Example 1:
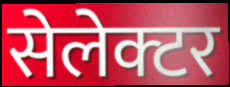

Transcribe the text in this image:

सेलेक्‍टर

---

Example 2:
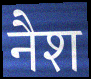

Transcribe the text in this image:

नैश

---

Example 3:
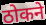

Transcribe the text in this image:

ठोकने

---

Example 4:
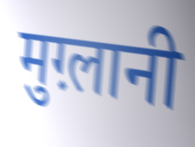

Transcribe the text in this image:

मुग़्लानी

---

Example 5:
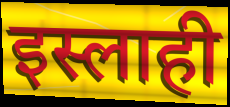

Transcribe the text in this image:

इस्लाही